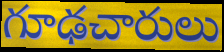
గూఢచారులు